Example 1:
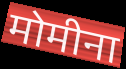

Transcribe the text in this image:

मोमीना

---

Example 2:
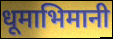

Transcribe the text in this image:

धूमाभिमानी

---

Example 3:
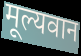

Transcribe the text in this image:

मूल्यवान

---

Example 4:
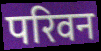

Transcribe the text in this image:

परिवन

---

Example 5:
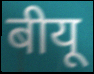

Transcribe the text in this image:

बीयू